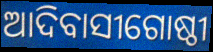
ଆଦିବାସୀଗୋଷ୍ଠୀ